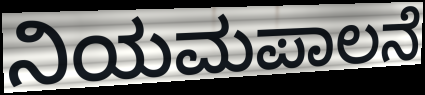
ನಿಯಮಪಾಲನೆ